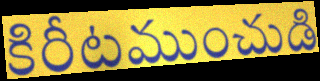
కిరీటముంచుడి